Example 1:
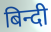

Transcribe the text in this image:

बिन्दी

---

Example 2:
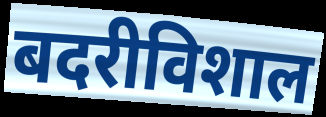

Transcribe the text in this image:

बदरीविशाल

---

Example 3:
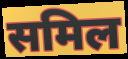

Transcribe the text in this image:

समिल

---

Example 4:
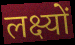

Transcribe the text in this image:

लक्ष्यों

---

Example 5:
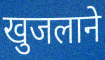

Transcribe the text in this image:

खुजलाने